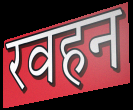
रवहन